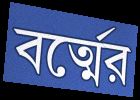
বর্ত্মের